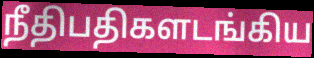
நீதிபதிகளடங்கிய